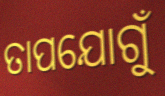
ତାପଯୋଗୁଁ